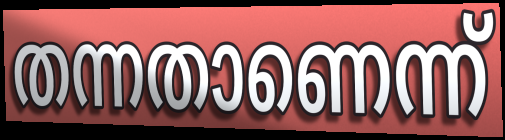
തന്നതാണെന്ന്